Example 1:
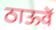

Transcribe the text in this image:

ठाऊवें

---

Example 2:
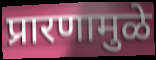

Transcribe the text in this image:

प्रारणामुळे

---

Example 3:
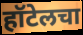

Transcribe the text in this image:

हॉटेलचा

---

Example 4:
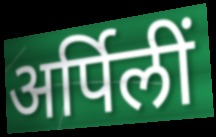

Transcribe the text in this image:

अर्पिलीं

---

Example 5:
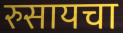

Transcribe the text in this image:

रुसायचा